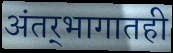
अंतर्भागातही